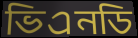
ভিএনডি